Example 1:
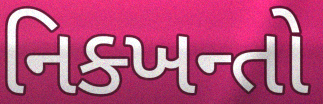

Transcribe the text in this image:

નિક્ખન્તો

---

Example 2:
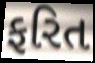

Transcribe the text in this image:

ફરિત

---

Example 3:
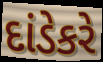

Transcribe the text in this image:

દાંડેકરે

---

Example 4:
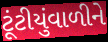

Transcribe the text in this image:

ટૂંટીયુંવાળીને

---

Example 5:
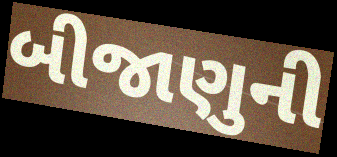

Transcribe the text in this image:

બીજાણુની